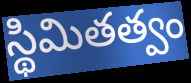
స్థిమితత్వం